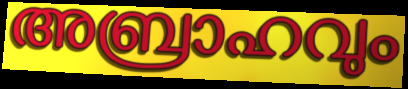
അബ്രാഹവും